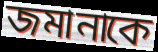
জমানাকে